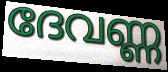
ദേവണ്ണ